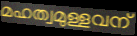
മഹത്വമുള്ളവന്